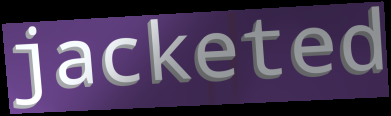
jacketed